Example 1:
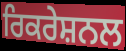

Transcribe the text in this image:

ਰਿਕਰੇਸ਼ਨਲ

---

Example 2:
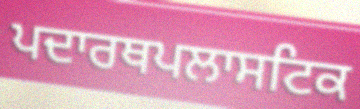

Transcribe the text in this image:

ਪਦਾਰਥਪਲਾਸਟਿਕ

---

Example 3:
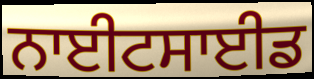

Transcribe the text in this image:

ਨਾਈਟਸਾਈਡ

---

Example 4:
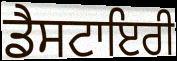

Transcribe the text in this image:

ਡੈਸਟਾਇਰੀ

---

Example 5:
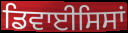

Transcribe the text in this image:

ਡਿਵਾਈਸਿਸਾਂ